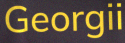
Georgii